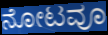
ನೋಟವೂ